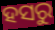
ହସରୁ